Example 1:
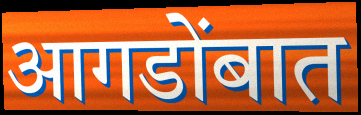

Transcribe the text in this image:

आगडोंबात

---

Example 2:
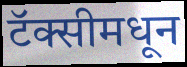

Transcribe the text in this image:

टॅक्सीमधून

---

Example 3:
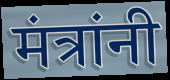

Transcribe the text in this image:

मंत्रांनी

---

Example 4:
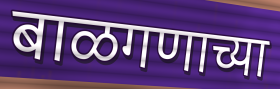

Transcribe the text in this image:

बाळगणाच्या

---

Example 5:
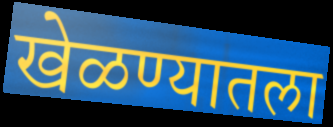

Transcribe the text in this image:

खेळण्यातला